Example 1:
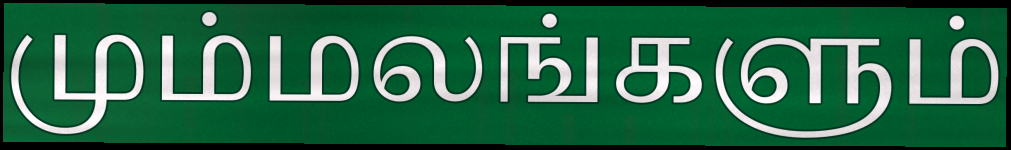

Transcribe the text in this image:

மும்மலங்களும்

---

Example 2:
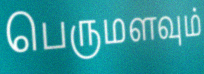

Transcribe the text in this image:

பெருமளவும்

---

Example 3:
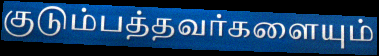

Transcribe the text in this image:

குடும்பத்தவர்களையும்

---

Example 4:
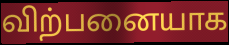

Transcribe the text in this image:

விற்பனையாக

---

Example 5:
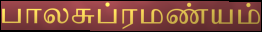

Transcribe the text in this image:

பாலசுப்ரமண்யம்